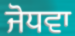
ਜੋਧਵਾ